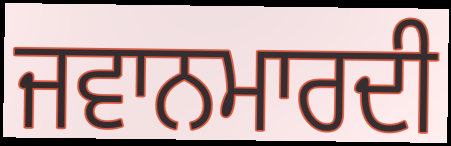
ਜਵਾਨਮਾਰਦੀ